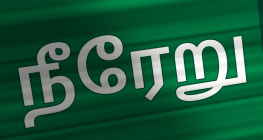
நீரேறு